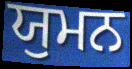
ਯੁਮਨ